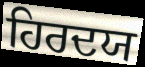
ਹਿਰਦਯ